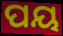
ପୟ